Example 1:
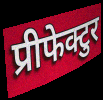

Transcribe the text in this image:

प्रीफेक्टुर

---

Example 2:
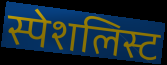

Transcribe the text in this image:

स्पेशलिस्ट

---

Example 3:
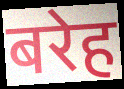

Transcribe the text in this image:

बरेह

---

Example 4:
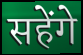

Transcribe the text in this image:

सहेंगे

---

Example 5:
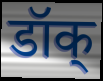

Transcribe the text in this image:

डॉक्